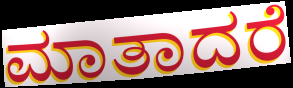
ಮಾತಾದರೆ